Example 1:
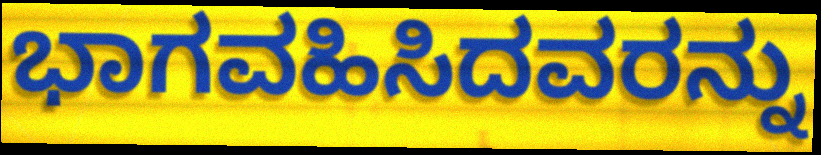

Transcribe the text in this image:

ಭಾಗವಹಿಸಿದವರನ್ನು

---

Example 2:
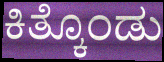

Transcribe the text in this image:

ಕಿತ್ಕೊಂಡು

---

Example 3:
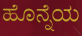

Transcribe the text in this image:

ಹೊನ್ನೆಯ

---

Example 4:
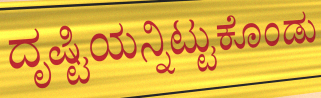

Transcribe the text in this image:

ದೃಷ್ಟಿಯನ್ನಿಟ್ಟುಕೊಂಡು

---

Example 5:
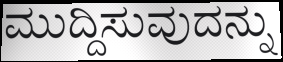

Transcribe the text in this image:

ಮುದ್ದಿಸುವುದನ್ನು